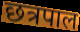
छत्रपाल